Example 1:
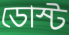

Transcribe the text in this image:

ডোস্ট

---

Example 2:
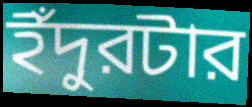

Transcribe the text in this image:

ইঁদুরটার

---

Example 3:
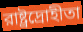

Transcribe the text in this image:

রাষ্ট্রদ্রোহীতা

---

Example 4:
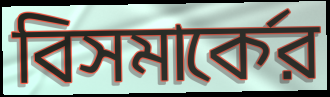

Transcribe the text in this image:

বিসমার্কের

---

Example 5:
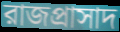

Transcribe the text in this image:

রাজপ্রাসাদ